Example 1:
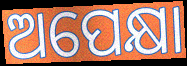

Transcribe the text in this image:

ଅପେକ୍ଷା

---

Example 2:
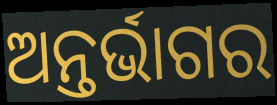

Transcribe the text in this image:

ଅନ୍ତର୍ଭାଗର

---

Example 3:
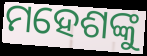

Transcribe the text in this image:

ମହେଶଙ୍କୁ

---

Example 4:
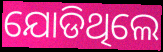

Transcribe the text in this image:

ଯୋଡିଥିଲେ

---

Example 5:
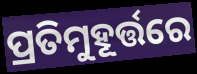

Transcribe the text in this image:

ପ୍ରତିମୁହୂର୍ତ୍ତରେ